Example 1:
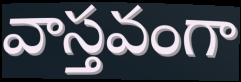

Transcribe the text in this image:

వాస్తవంగా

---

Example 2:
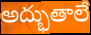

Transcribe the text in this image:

అద్భుతాలే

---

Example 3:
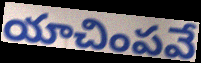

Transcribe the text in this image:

యాచింపవే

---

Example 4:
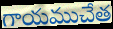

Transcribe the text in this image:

గాయముచేత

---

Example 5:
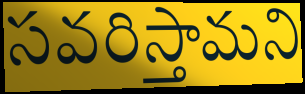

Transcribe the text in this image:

సవరిస్తామని